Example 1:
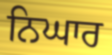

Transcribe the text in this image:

ਨਿਘਾਰ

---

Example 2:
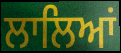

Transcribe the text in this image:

ਲਾਲਿਆਂ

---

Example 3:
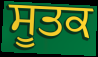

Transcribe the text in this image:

ਸੂਤਕ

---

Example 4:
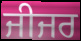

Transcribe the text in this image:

ਜੀਜਰ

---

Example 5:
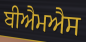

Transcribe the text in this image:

ਬੀਐਮਐਸ